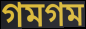
গমগম